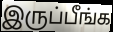
இருப்பீங்க